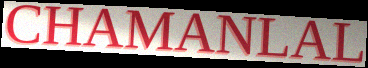
CHAMANLAL